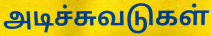
அடிச்சுவடுகள்